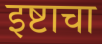
इष्टाचा